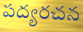
పద్యరచన